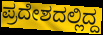
ಪ್ರದೇಶದಲ್ಲಿದ್ದ